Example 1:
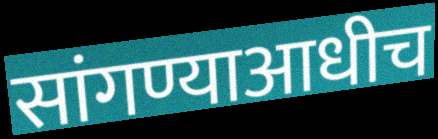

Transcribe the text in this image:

सांगण्याआधीच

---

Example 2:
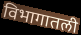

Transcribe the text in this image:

विभागातली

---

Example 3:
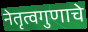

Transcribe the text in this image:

नेतृत्वगुणाचे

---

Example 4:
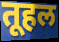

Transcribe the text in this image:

तूहल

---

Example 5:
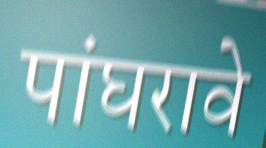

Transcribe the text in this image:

पांघरावे